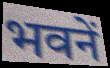
भवनें